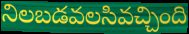
నిలబడవలసివచ్చింది